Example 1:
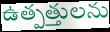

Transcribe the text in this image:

ఉత్పత్తులను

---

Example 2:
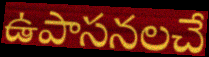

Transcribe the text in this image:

ఉపాసనలచే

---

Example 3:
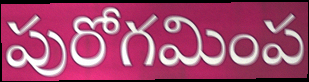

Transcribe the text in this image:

పురోగమింప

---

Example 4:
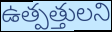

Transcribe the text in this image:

ఉత్పత్తులని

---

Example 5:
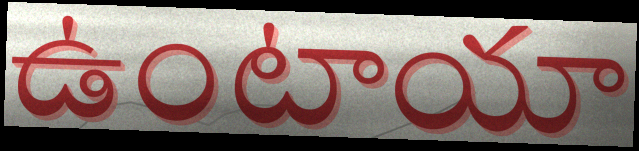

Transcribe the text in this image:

ఉంటాయా